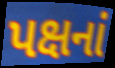
પક્ષનાં